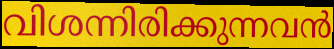
വിശന്നിരിക്കുന്നവൻ